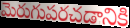
మెరుగుపరచడానికి